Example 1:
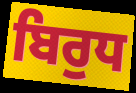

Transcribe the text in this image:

ਬਿਰੁਧ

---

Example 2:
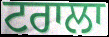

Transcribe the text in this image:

ਟਰਾਲਾ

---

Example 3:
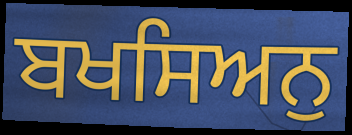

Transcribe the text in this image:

ਬਖਸਿਅਨੁ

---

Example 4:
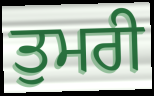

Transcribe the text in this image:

ਤੁਮਰੀ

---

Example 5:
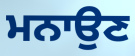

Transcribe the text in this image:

ਮਨਾਉਣ